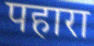
पहारा